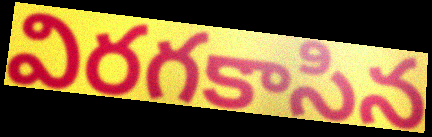
విరగకాసిన